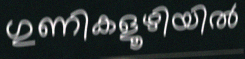
ഗുണികളൂഴിയിൽ